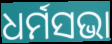
ଧର୍ମସଭା